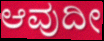
ಆವುದೀ